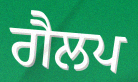
ਗੈਲਪ